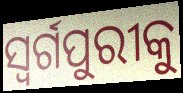
ସ୍ୱର୍ଗପୁରୀକୁ